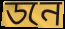
ডনে